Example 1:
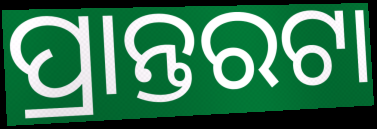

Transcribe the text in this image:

ପ୍ରାନ୍ତରଟା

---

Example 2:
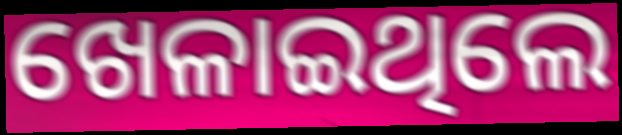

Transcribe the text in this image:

ଖେଳାଇଥିଲେ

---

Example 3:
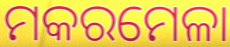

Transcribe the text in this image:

ମକରମେଳା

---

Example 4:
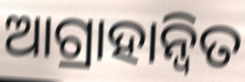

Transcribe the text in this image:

ଆଗ୍ରାହାନ୍ୱିତ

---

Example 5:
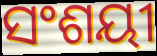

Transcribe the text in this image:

ସଂଶୟୀ